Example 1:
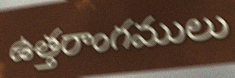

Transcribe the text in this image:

ఉత్తరాంగములు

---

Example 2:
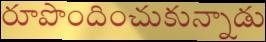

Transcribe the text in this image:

రూపొందించుకున్నాడు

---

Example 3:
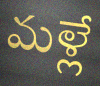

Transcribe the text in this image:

మళ్లే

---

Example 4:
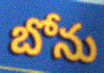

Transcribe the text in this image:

బోను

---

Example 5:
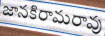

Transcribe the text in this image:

జానకిరామరావు